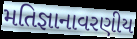
મતિજ્ઞાનાવરણીય